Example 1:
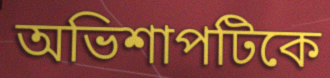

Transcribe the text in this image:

অভিশাপটিকে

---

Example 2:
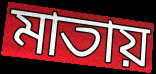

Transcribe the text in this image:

মাতায়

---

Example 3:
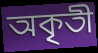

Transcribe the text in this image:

অকৃতী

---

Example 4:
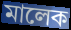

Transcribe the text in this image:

মালেক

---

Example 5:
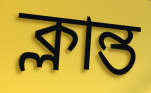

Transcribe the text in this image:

ক্লান্ত